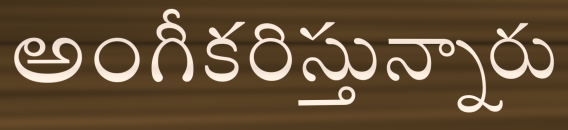
అంగీకరిస్తున్నారు